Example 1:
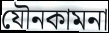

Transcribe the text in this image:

যৌনকামনা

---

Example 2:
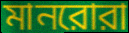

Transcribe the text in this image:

মানরোরা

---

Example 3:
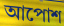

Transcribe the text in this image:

আপোশ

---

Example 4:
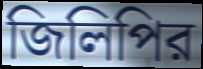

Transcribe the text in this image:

জিলিপির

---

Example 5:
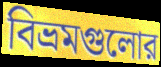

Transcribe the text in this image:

বিভ্রমগুলোর